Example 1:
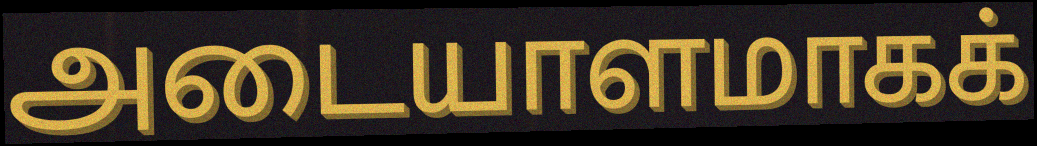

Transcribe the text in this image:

அடையாளமாகக்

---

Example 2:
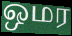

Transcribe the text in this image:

ஒமர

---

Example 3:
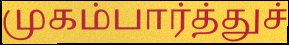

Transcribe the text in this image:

முகம்பார்த்துச்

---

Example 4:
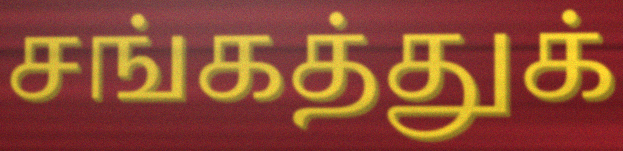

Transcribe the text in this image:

சங்கத்துக்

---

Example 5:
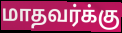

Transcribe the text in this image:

மாதவர்க்கு